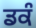
ਡਕੰ